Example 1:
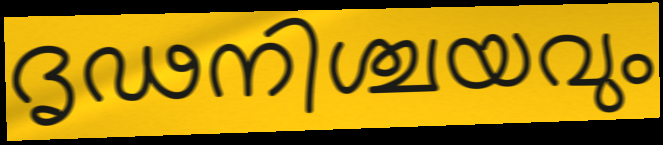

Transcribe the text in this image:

ദൃഢനിശ്ചയവും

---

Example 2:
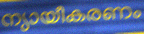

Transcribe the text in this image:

ന്യായീകരണം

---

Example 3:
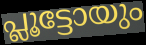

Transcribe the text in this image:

പ്ലൂട്ടോയും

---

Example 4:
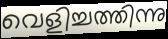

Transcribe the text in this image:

വെളിച്ചത്തിന്നു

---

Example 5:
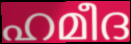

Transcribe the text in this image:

ഹമീദ